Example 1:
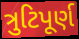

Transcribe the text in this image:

ત્રુટિપૂર્ણ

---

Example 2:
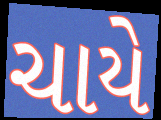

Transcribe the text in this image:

ચાયે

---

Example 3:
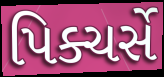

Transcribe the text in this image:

પિક્ચર્સે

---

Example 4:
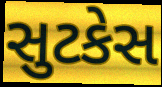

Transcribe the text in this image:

સુટકેસ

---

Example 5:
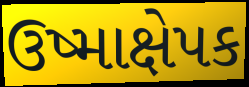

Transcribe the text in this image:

ઉષ્માક્ષેપક